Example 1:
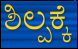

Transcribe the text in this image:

ಶಿಲ್ಪಕ್ಕೆ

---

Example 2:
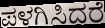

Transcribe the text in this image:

ಪಳಗಿಸಿದರೆ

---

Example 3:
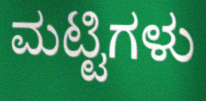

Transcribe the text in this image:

ಮಟ್ಟಿಗಳು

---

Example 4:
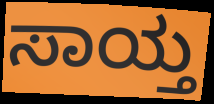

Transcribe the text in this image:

ಸಾಯ್ತ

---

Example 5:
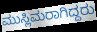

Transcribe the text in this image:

ಮುಸ್ಲಿಮರಾಗಿದ್ದರು